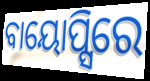
ବାୟୋପ୍ସିରେ